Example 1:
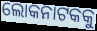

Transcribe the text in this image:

ଲୋକନାଟକକୁ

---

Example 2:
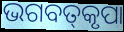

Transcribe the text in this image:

ଭଗବତ୍‌କୃପା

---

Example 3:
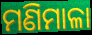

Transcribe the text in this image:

ମଣିମାଳା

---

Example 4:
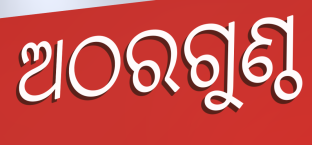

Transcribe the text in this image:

ଅଠରଗୁଣ୍ଠ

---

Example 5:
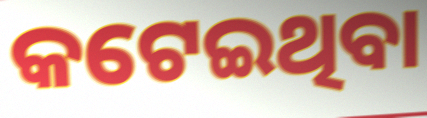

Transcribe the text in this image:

କଟେଇଥିବା